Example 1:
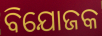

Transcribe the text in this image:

ବିଯୋଜକ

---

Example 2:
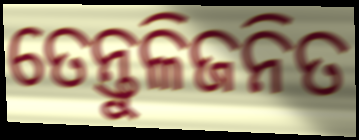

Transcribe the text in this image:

ତେନ୍ତୁଳିଜନିତ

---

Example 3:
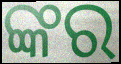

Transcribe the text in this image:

ଙ୍କର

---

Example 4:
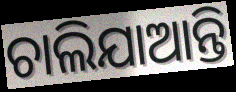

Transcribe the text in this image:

ଚାଲିଯାଆନ୍ତି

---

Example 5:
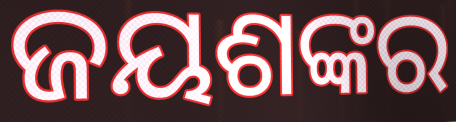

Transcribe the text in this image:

ଜୟଶଙ୍କର